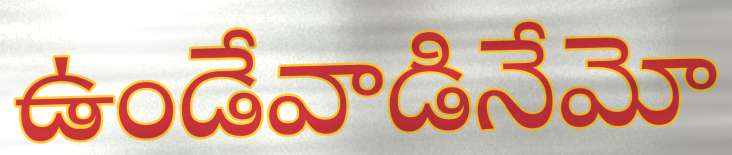
ఉండేవాడినేమో